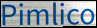
Pimlico